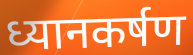
ध्यानकर्षण